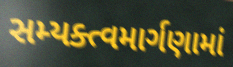
સમ્યક્ત્વમાર્ગણામાં